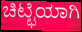
ಚಿಟ್ಟೆಯಾಗಿ